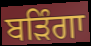
ਬੜਿੰਗਾ